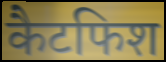
कैटफिश